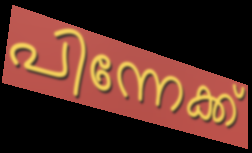
പിന്നേക്ക്